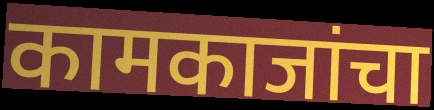
कामकाजांचा